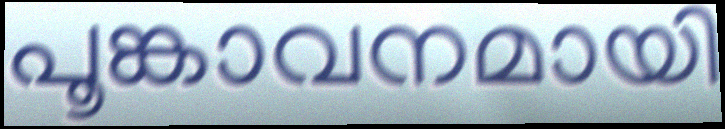
പൂങ്കാവനമായി